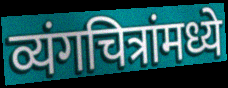
व्यंगचित्रांमध्ये